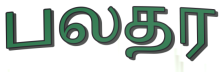
பலதர